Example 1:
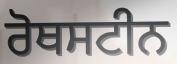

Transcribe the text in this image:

ਰੋਥਸਟੀਨ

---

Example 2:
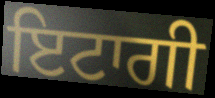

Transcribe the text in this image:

ਇਟਾਗੀ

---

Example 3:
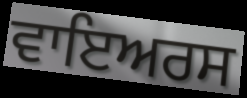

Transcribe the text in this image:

ਵਾਇਅਰਸ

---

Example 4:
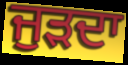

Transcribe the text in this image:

ਜੁੜਦਾ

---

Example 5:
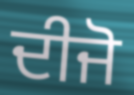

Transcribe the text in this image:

ਦੀਜੋ